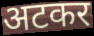
अटकर